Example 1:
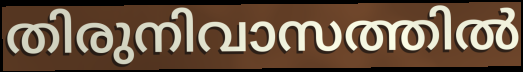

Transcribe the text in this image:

തിരുനിവാസത്തിൽ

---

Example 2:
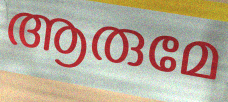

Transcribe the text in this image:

ആരുമേ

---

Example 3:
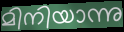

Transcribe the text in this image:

മിനിയാന്നു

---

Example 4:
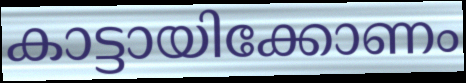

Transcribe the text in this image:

കാട്ടായിക്കോണം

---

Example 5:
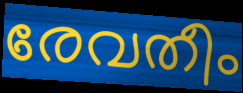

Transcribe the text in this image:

രേവതീം